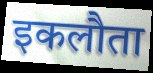
इकलौता